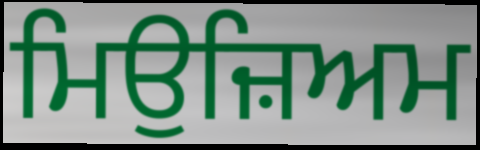
ਮਿਉਜ਼ਿਅਮ